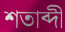
শতাব্দী